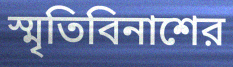
স্মৃতিবিনাশের